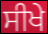
ਸੀਖੇ